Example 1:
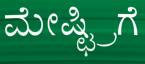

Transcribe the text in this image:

ಮೇಷ್ಟ್ರಿಗೆ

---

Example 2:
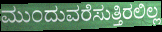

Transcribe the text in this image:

ಮುಂದುವರೆಸುತ್ತಿರಲಿಲ್ಲ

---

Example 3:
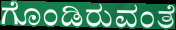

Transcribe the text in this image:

ಗೊಂಡಿರುವಂತೆ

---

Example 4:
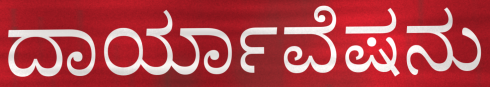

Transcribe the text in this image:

ದಾರ್ಯಾವೆಷನು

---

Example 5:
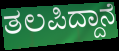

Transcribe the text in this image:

ತಲಪಿದ್ದಾನೆ